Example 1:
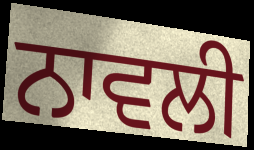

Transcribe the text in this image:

ਨਾਵਲੀ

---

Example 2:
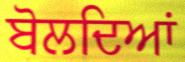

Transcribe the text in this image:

ਬੋਲਦਿਆਂ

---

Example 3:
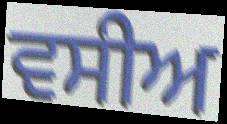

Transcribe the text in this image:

ਵਸੀਅ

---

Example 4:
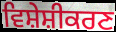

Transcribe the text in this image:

ਵਿਸ਼ੇਸ਼ੀਕਰਣ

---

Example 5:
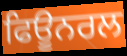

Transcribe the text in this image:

ਫਿਊਨਰਲ